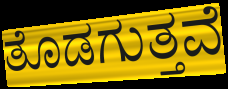
ತೊಡಗುತ್ತವೆ